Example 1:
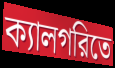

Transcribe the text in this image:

ক্যালগরিতে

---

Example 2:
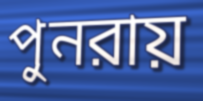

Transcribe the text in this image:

পুনরায়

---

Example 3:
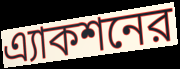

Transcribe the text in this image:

এ্যাকশনের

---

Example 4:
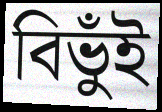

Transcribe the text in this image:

বিভুঁই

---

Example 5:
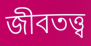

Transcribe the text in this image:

জীবতত্ত্ব